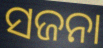
ସଜନା